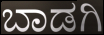
ಬಾಡಗಿ